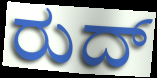
ರುದ್